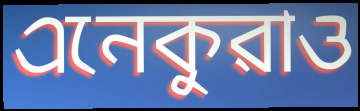
এনেকুৱাও